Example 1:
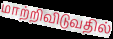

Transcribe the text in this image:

மாற்றிவிடுவதில்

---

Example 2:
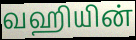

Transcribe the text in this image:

வஹியின்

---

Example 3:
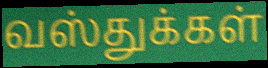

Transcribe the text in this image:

வஸ்துக்கள்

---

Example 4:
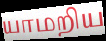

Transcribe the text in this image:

யாமறிய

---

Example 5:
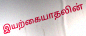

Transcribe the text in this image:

இயற்கையாதலின்